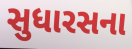
સુધારસના